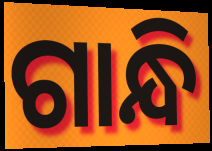
ଗାନ୍ଧି